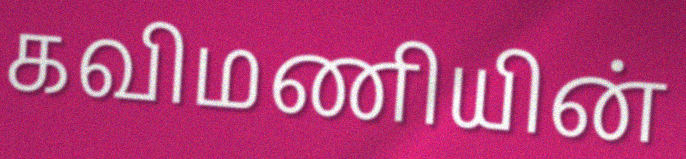
கவிமணியின்